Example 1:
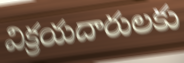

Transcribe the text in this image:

విక్రయదారులకు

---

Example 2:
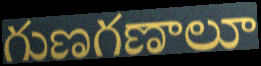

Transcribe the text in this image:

గుణగణాలూ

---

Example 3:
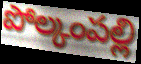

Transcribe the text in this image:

పోల్కంపల్లి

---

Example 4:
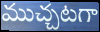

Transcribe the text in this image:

ముచ్చటగా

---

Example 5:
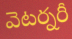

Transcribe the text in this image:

వెటర్నరీ